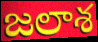
జలాశ